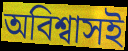
অবিশ্বাসই